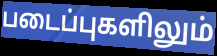
படைப்புகளிலும்